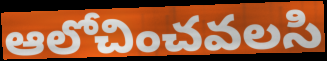
ఆలోచించవలసి